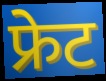
फ्रेट